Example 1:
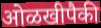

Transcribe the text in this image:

ओळखीपैकी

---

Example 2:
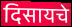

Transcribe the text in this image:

दिसायचे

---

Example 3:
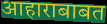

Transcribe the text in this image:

आहाराबाबत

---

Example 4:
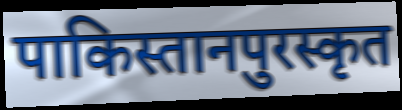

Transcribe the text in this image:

पाकिस्तानपुरस्कृत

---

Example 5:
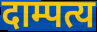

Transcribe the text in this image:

दाम्पत्य